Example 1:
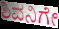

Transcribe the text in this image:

ಶಿವನಿಗೇ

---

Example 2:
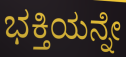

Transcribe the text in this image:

ಭಕ್ತಿಯನ್ನೇ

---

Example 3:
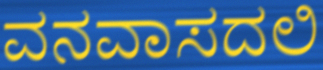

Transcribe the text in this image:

ವನವಾಸದಲಿ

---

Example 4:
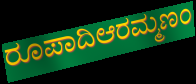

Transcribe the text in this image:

ರೂಪಾದಿಆರಮ್ಮಣಂ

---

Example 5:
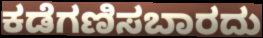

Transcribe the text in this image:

ಕಡೆಗಣಿಸಬಾರದು